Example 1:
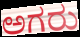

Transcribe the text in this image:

ಅಗರು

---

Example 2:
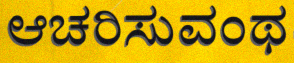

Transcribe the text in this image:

ಆಚರಿಸುವಂಥ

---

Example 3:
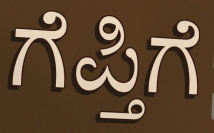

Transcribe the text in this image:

ಗೆಪ್ತಿಗೆ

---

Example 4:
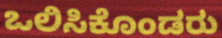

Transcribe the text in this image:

ಒಲಿಸಿಕೊಂಡರು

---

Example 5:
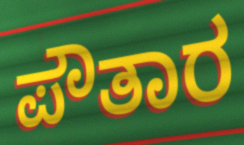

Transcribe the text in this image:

ಪೌತಾರ